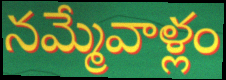
నమ్మేవాళ్లం